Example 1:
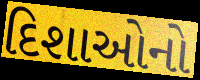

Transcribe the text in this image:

દિશાઓનો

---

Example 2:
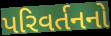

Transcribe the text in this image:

પરિવર્તનનો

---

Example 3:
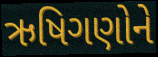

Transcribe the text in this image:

ઋષિગણોને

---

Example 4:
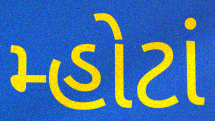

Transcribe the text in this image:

મ્હોટાં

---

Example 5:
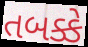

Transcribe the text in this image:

તબક્કે